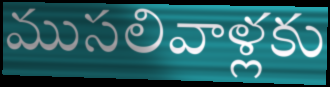
ముసలివాళ్లకు